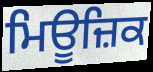
ਮਿਊਜ਼ਿਕ